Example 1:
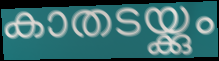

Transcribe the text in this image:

കാതടയ്ക്കും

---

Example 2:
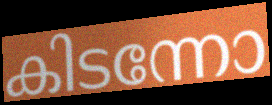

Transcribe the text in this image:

കിടന്നോ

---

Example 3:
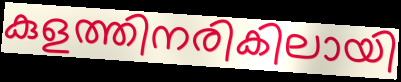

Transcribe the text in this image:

കുളത്തിനരികിലായി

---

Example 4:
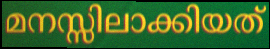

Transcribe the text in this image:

മനസ്സിലാക്കിയത്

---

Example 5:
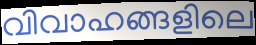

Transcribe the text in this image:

വിവാഹങ്ങളിലെ